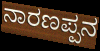
ನಾರಣಪ್ಪನ